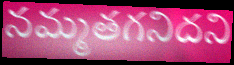
నమ్మతగనిదని